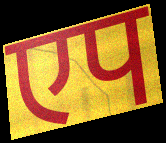
एप